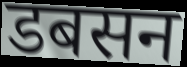
डबसन